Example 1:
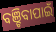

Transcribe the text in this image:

ବଞ୍ଚିବାପାଇଁ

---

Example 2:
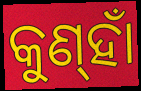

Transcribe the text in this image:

କୁଣ୍‌ହାଁ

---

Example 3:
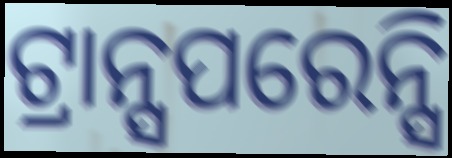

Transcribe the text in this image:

ଟ୍ରାନ୍ସପରେନ୍ସି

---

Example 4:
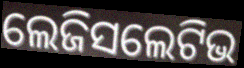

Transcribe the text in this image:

ଲେଜିସଲେଟିଭ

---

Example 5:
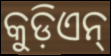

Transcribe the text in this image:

କୁଡ଼ିଏନ୍